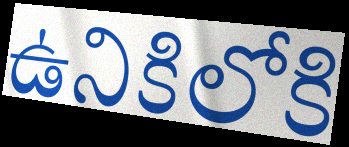
ఉనికిలోకి